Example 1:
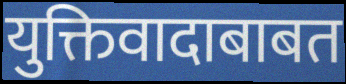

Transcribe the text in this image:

युक्तिवादाबाबत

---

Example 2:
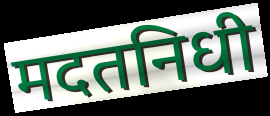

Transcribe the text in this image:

मदतनिधी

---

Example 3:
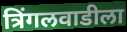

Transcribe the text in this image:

त्रिंगलवाडीला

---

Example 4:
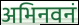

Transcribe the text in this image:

अभिनवनं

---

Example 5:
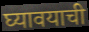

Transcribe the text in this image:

घ्यावयाची